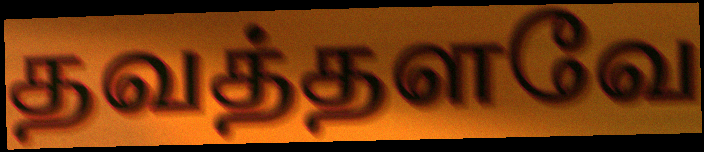
தவத்தளவே